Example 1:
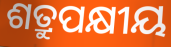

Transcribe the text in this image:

ଶତ୍ରୁପକ୍ଷୀୟ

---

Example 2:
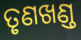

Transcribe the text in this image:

ତୃଣଖଣ୍ଡ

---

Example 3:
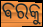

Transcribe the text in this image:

ଵରକୁ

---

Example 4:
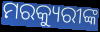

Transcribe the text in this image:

ମରକ୍ୟୁରୀଙ୍କ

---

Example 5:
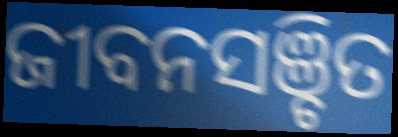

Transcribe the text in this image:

ଜୀବନସଞ୍ଚିତ